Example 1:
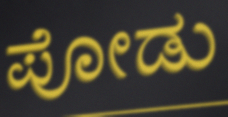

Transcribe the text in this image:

ಪೋಡು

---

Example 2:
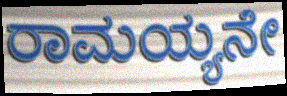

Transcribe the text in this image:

ರಾಮಯ್ಯನೇ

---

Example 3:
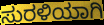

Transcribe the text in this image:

ಸುರಳಿಯಾಗಿ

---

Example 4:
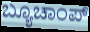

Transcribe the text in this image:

ಬ್ಯೂಚಾಂಪ್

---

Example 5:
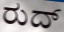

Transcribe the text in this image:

ರುದ್